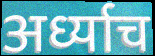
अर्ध्याच